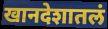
खानदेशातलं